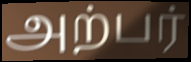
அற்பர்